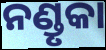
ନଣ୍ଡୃକା